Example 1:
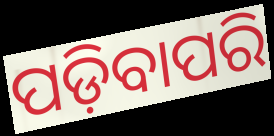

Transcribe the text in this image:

ପଡ଼ିବାପରି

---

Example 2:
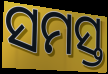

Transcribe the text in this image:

ସମସ୍ତ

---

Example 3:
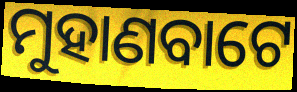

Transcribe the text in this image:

ମୁହାଣବାଟେ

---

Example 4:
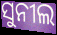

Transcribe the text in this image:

ସୁନୀଲ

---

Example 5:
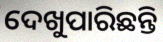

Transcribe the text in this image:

ଦେଖୁପାରିଛନ୍ତି